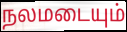
நலமடையும்